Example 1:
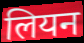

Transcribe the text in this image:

लियन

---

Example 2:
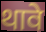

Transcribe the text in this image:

थावे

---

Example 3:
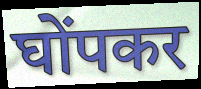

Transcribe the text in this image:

घोंपकर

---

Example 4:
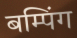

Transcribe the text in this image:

बम्पिंग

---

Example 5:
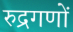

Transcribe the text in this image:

रुद्रगणों